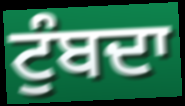
ਟੁੰਬਦਾ